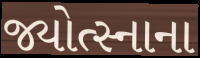
જ્યોત્સ્નાના